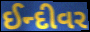
ઈન્દીવર